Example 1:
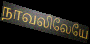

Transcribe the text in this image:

நாவலிலேயே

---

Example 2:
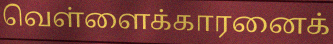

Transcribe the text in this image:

வெள்ளைக்காரனைக்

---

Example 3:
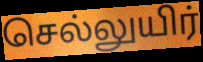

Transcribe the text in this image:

செல்லுயிர்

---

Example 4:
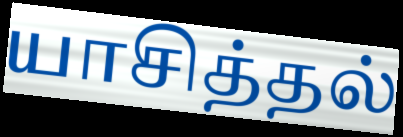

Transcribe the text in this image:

யாசித்தல்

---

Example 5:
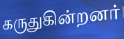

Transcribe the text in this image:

கருதுகின்றனர்